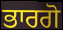
ਭਾਰਗੋ